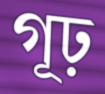
গূঢ়